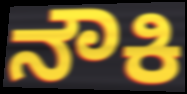
ನೌಕಿ